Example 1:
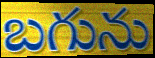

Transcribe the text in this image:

బగును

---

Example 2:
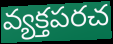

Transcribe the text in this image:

వ్యక్తపరచ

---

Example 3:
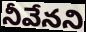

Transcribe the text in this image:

నీవేనని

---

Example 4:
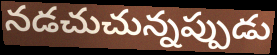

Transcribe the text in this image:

నడచుచున్నప్పుడు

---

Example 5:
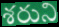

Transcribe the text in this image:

శరుని